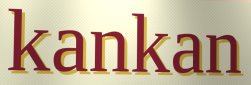
kankan